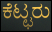
ಕೆಟ್ಟರು